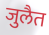
जुलैत